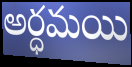
అర్ధమయి